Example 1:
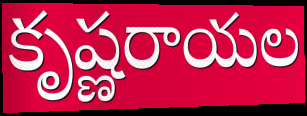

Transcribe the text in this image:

కృష్ణరాయల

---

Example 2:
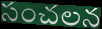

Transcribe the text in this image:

సంచలన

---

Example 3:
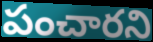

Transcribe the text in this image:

పంచారని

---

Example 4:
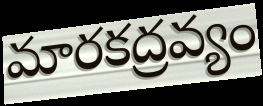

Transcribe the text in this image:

మారకద్రవ్యం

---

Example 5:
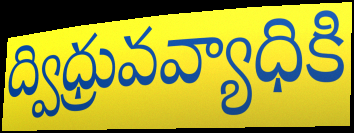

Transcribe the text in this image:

ద్విధ్రువవ్యాధికి